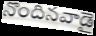
నొందినవాడై